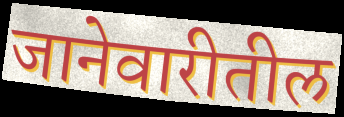
जानेवारीतील